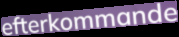
efterkommande